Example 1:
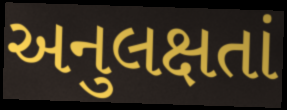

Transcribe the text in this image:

અનુલક્ષતાં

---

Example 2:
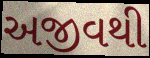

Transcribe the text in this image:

અજીવથી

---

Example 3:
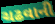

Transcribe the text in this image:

ચઢવાની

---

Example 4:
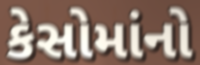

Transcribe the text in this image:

કેસોમાંનો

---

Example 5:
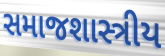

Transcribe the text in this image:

સમાજશાસ્ત્રીય